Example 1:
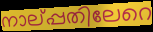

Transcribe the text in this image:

നാല്പ്പതിലേറെ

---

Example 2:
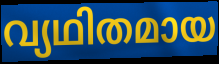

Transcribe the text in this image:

വ്യഥിതമായ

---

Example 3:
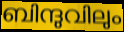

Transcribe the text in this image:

ബിന്ദുവിലും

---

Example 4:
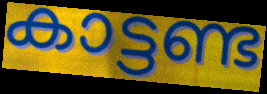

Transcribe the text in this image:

കാട്ടണ്ട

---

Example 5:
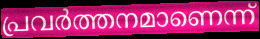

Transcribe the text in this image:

പ്രവർത്തനമാണെന്ന്